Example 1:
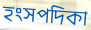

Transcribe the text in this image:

হংসপদিকা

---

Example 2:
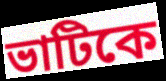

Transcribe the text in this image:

ভাটিকে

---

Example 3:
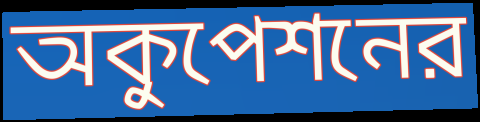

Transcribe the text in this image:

অকুপেশনের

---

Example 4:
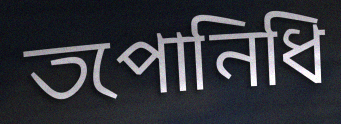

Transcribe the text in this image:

তপোনিধি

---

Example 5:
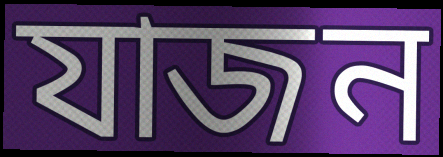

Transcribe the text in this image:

যাজন